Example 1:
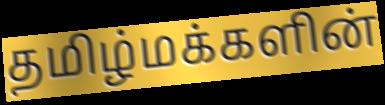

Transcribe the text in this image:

தமிழ்மக்களின்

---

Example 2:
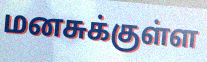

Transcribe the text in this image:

மனசுக்குள்ள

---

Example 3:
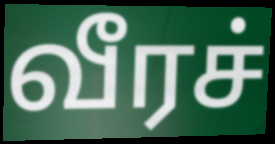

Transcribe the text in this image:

வீரச்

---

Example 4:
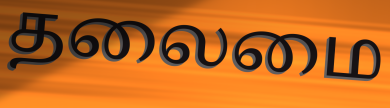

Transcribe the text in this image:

தலைமை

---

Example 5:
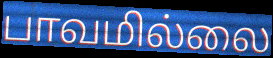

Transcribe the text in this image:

பாவமில்லை